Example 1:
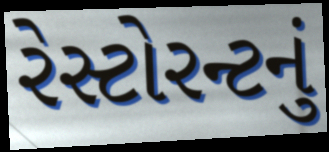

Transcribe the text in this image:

રેસ્ટોરન્ટનું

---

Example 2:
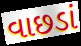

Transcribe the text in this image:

વાછડાં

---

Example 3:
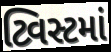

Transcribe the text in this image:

ટ્વિસ્ટમાં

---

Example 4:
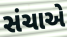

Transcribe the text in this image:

સંચાએ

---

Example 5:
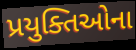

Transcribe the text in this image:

પ્રયુક્તિઓના